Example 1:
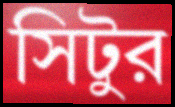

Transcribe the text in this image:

সিটুর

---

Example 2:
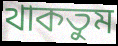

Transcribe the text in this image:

থাকতুম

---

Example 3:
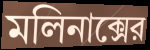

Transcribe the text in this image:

মলিনাক্সের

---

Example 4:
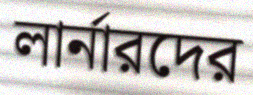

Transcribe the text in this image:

লার্নারদের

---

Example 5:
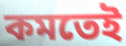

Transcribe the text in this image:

কমতেই